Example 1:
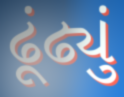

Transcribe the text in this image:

ઢૂંઢ્યું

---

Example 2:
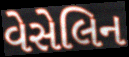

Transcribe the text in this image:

વેસેલિન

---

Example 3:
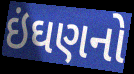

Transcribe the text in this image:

ઇંઘણનો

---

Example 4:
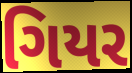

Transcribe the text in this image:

ગિયર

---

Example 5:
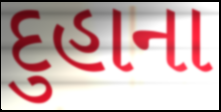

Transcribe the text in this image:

દુહાના